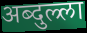
अब्दुल्ला